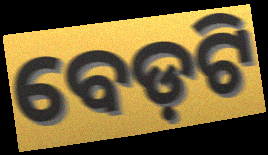
ବେଡ଼ଟି